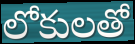
లోకులతో